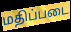
மதிப்படை